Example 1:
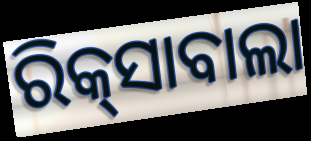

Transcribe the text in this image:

ରିକ୍‍ସାବାଲା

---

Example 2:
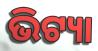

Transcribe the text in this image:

ଭିଟ୍ୟା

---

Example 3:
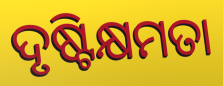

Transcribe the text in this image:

ଦୃଷ୍ଟିକ୍ଷମତା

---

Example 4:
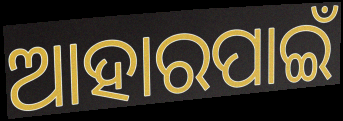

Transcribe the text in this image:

ଆହାରପାଇଁ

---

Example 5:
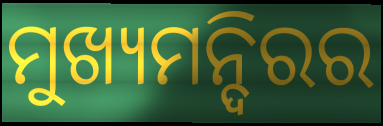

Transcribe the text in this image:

ମୁଖ୍ୟମନ୍ଦିରର